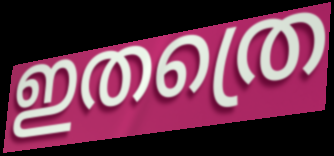
ഇതത്രെ